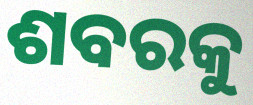
ଶବରକୁ